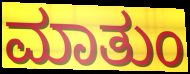
ಮಾತುಂ